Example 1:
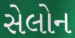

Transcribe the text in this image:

સેલોન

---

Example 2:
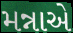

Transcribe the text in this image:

મન્નાએ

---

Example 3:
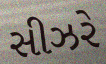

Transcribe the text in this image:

સીઝરે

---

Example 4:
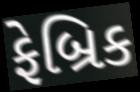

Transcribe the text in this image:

ફેબ્રિક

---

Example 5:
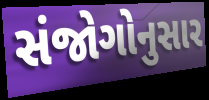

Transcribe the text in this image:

સંજોગોનુસાર